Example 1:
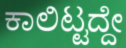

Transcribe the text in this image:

ಕಾಲಿಟ್ಟದ್ದೇ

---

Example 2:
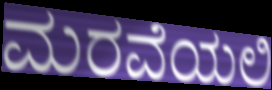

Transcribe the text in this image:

ಮರವೆಯಲಿ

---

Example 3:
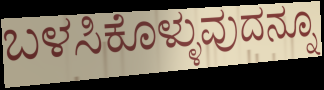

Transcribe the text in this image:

ಬಳಸಿಕೊಳ್ಳುವುದನ್ನೂ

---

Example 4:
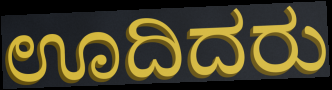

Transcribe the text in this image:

ಊದಿದರು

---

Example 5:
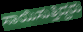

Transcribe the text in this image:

ಸಾಯಿಸುತ್ತಿದ್ದರು